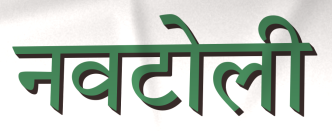
नवटोली